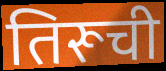
तिरूची